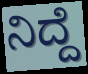
ನಿದ್ದೆ